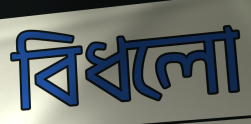
বিধলো